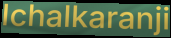
Ichalkaranji